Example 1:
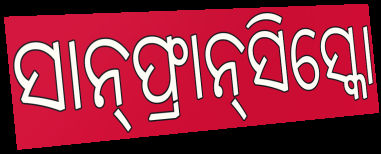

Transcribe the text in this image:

ସାନ୍‌ଫ୍ରାନ୍‌ସିସ୍କୋ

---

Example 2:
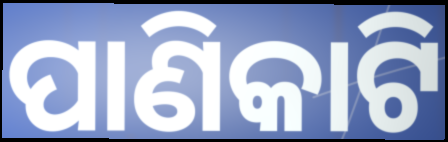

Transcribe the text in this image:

ପାଣିକାଟି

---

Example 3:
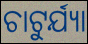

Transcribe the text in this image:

ଚାଟୁର୍ଯ୍ୟା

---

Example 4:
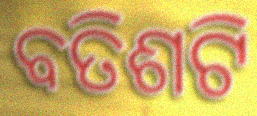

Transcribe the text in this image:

ବତିଶଟି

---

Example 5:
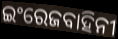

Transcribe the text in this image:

ଇଂରେଜବାହିନୀ